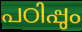
പഠിപ്പും